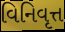
વિનિવૃત્ત